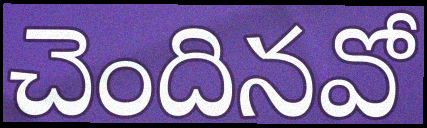
చెందినవో